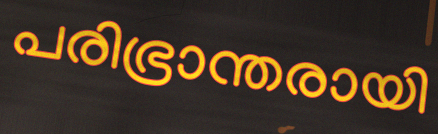
പരിഭ്രാന്തരായി